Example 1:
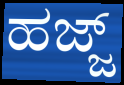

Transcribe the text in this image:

ಹಜ್ಜ್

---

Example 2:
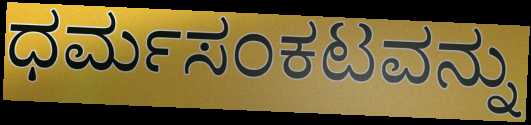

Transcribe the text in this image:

ಧರ್ಮಸಂಕಟವನ್ನು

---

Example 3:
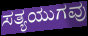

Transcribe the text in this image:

ಸತ್ಯಯುಗವು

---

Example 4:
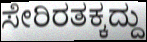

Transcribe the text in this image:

ಸೇರಿರತಕ್ಕದ್ದು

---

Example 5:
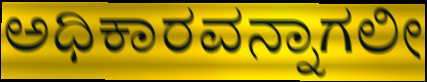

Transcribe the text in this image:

ಅಧಿಕಾರವನ್ನಾಗಲೀ